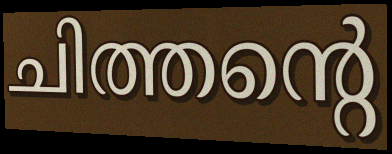
ചിത്തന്റെ